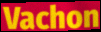
Vachon